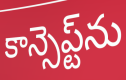
కాన్సెప్ట్‌ను